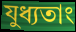
যুধ্যতাং